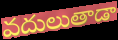
వదులుతాడా